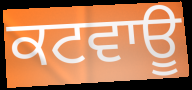
ਕਟਵਾਊ